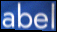
abel